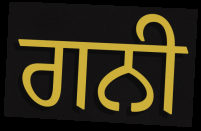
ਗਨੀ